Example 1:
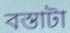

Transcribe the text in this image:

বস্তাটা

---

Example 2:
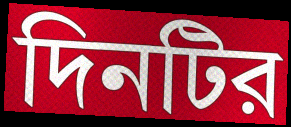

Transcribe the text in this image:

দিনটির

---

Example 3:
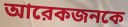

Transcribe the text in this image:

আরেকজনকে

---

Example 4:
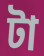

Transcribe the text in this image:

টা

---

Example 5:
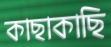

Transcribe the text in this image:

কাছাকাছি